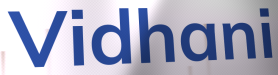
Vidhani